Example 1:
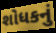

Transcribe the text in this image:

શોધકનું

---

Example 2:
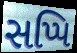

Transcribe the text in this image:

સપ્પિ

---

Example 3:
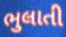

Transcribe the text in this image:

ભુલાતી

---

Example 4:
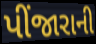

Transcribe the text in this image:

પીંજારાની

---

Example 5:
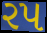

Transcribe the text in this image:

રપ